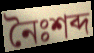
নৈঃশব্দ